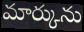
మార్కును